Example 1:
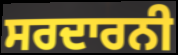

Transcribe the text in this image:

ਸਰਦਾਰਨੀ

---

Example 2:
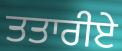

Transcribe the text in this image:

ਤਤਾਰੀਏ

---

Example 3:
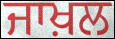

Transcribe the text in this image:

ਜਾਖ਼ਲ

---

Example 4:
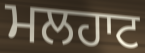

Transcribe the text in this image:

ਮਲਹਾਟ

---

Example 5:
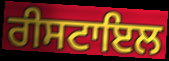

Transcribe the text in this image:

ਰੀਸਟਾਇਲ